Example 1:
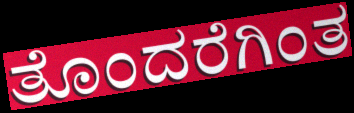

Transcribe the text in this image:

ತೊಂದರೆಗಿಂತ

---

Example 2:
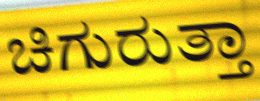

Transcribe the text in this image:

ಚಿಗುರುತ್ತಾ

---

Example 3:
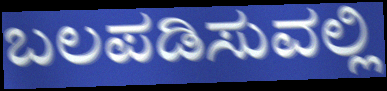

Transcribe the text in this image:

ಬಲಪಡಿಸುವಲ್ಲಿ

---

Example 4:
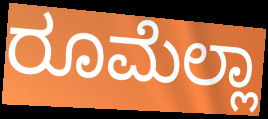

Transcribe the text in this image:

ರೂಮೆಲ್ಲಾ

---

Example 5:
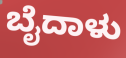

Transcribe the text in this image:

ಬೈದಾಳು